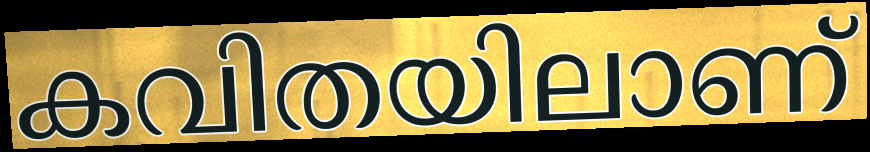
കവിതയിലാണ്